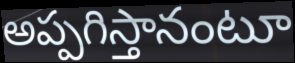
అప్పగిస్తానంటూ